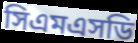
সিএমএসডি